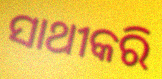
ସାଥୀକରି